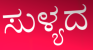
ಸುಳ್ಯದ